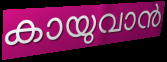
കായുവാൻ